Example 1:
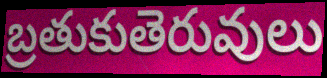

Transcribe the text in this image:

బ్రతుకుతెరువులు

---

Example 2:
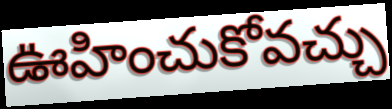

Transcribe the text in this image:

ఊహించుకోవచ్చు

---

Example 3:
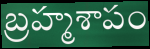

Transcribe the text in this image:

బ్రహ్మశాపం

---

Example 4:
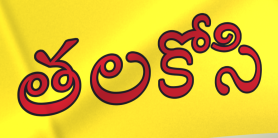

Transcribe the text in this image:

తలకోసి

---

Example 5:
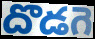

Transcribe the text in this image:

దొడగె